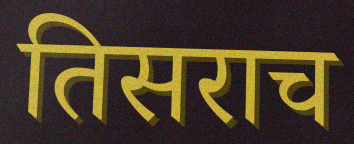
तिसराच